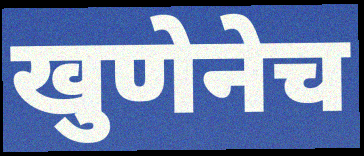
खुणेनेच